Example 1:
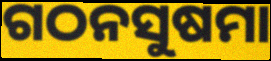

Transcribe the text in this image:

ଗଠନସୁଷମା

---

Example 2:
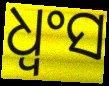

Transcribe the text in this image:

ଧ୍ଵଂସ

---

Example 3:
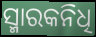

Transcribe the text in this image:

ସ୍ମାରକନିଧି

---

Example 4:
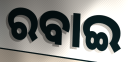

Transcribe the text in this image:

ରବାଇ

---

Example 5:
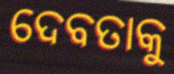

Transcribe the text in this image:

ଦେବତାକୁ